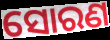
ସୋରଣ